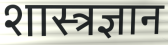
शास्त्रज्ञान